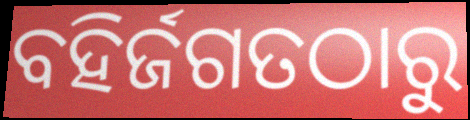
ବହିର୍ଜଗତଠାରୁ